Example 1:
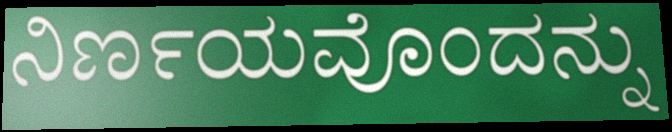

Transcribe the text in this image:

ನಿರ್ಣಯವೊಂದನ್ನು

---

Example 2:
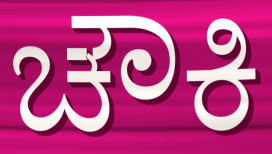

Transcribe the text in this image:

ಚೌಕಿ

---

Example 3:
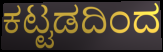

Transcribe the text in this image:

ಕಟ್ಟಡದಿಂದ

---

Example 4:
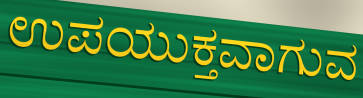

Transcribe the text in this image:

ಉಪಯುಕ್ತವಾಗುವ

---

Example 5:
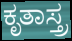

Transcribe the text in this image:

ಕೃತಾಸ್ತ್ರ